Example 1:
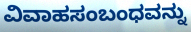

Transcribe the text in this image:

ವಿವಾಹಸಂಬಂಧವನ್ನು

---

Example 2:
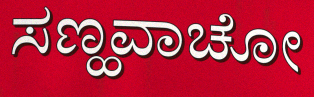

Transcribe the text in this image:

ಸಣ್ಹವಾಚೋ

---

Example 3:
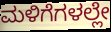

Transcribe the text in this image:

ಮಳಿಗೆಗಳಲ್ಲೇ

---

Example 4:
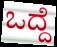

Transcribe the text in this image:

ಒದ್ದೆ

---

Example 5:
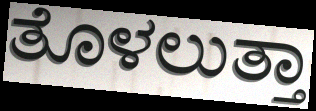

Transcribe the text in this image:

ತೊಳಲುತ್ತಾ